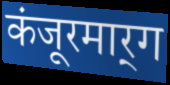
कंजूरमार्ग